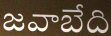
జవాబేది